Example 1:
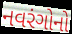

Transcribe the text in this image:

નવરંગોનો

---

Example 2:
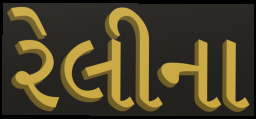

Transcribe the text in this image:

રેલીના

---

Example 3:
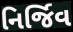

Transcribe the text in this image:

નિર્જિવ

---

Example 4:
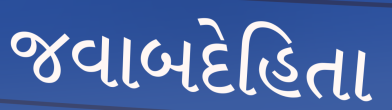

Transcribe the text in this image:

જવાબદેહિતા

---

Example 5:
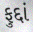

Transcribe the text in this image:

ફુદ્દાં